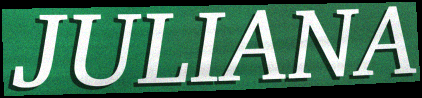
JULIANA